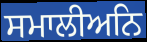
ਸਮਾਲੀਅਨਿ